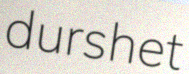
durshet